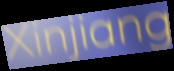
Xinjiang